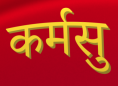
कर्मसु